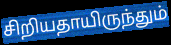
சிறியதாயிருந்தும்